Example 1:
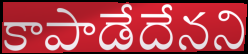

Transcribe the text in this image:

కాపాడేదేనని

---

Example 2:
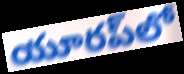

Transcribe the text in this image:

యూరప్‌లో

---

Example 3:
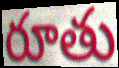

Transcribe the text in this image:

రూతు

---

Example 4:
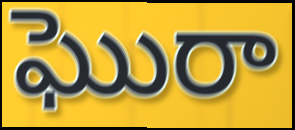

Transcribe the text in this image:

ఘొరా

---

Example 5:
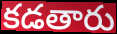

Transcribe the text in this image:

కడతారు